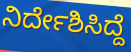
ನಿರ್ದೇಶಿಸಿದ್ದೆ